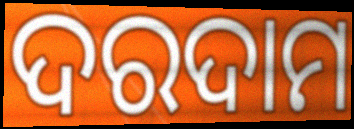
ଦରଦାମ